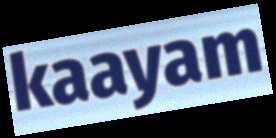
kaayam